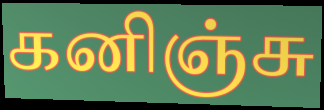
கனிஞ்சு